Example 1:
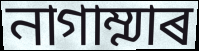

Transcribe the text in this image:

নাগাম্মাৰ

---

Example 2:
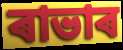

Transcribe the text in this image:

ৰাভাৰ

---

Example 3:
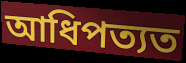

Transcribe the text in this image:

আধিপত্যত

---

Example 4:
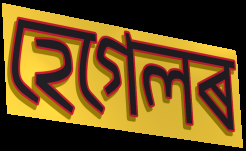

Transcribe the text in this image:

হেগেলৰ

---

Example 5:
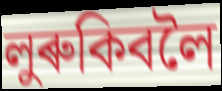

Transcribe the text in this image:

লুৰুকিবলৈ